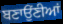
ਬਣਾਉਂਣੀਆਂ